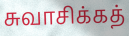
சுவாசிக்கத்